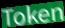
Token